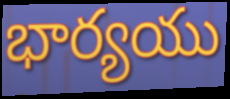
భార్యయు